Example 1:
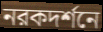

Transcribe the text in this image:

নরকদর্শনে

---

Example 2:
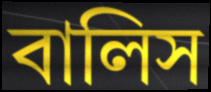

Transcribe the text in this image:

বালিস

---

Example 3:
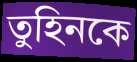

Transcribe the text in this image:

তুহিনকে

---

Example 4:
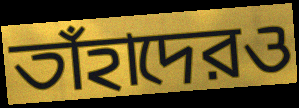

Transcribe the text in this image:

তাঁহাদেরও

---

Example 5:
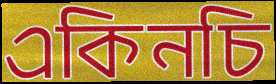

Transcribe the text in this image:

একিনচি